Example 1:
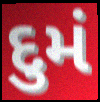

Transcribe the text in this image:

દુમં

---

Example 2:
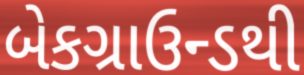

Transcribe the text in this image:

બેકગ્રાઉન્ડથી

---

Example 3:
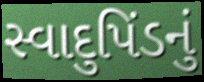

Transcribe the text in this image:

સ્વાદુપિંડનું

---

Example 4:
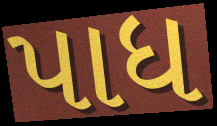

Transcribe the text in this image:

પાધ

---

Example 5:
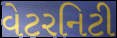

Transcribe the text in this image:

વેટરનિટી